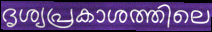
ദൃശ്യപ്രകാശത്തിലെ